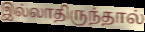
இல்லாதிருந்தால்